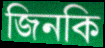
জিনকি